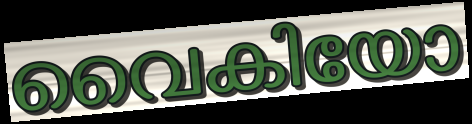
വൈകിയോ